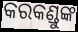
କରକଣ୍ଡୁଙ୍କ